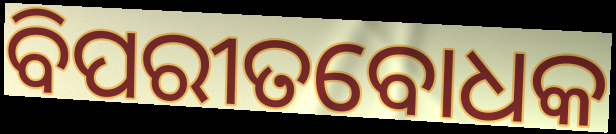
ବିପରୀତବୋଧକ